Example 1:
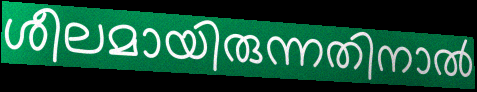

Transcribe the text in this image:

ശീലമായിരുന്നതിനാൽ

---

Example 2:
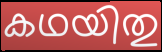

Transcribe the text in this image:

കഥയിതു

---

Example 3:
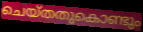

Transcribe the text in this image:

ചെയ്തതുകൊണ്ടും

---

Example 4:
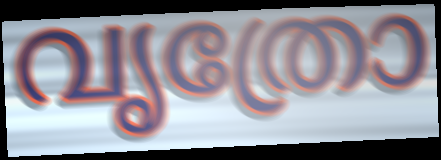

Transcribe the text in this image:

വൃത്രോ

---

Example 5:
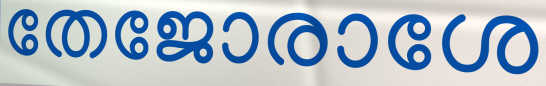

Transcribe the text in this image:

തേജോരാശേ